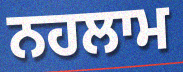
ਨਹਲਾਮ